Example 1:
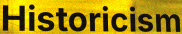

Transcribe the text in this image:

Historicism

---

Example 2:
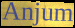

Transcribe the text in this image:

Anjum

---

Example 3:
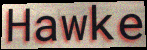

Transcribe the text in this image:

Hawke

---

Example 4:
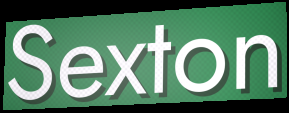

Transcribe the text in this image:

Sexton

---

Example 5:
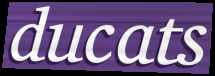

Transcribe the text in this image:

ducats